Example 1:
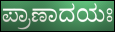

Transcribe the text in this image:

ಪ್ರಾಣಾದಯಃ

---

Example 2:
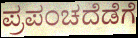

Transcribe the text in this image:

ಪ್ರಪಂಚದೆಡೆಗೆ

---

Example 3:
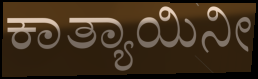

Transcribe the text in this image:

ಕಾತ್ಯಾಯಿನೀ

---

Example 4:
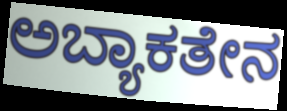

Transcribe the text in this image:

ಅಬ್ಯಾಕತೇನ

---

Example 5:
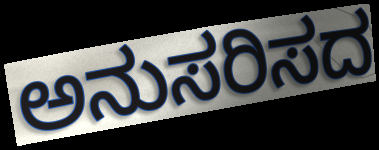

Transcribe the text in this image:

ಅನುಸರಿಸದ